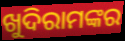
ଖୁଦିରାମଙ୍କର